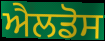
ਐਲਡੋਸ